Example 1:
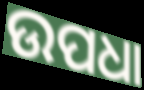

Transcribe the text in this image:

ଉପଧା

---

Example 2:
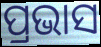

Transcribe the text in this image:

ପ୍ରଭାସ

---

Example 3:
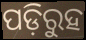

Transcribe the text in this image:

ପଡ଼ିରୁହ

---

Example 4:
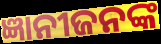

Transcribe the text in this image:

ଜ୍ଞାନୀଜନଙ୍କ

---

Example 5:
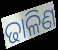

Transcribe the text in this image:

ଢାଳିଣ